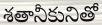
శతానీకునితో